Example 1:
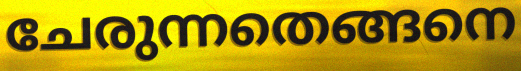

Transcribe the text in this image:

ചേരുന്നതെങ്ങനെ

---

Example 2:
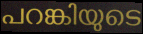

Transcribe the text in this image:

പറങ്കിയുടെ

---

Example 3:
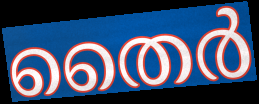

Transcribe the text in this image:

തൈർ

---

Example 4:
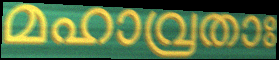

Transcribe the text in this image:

മഹാവ്രതാഃ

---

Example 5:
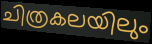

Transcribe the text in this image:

ചിത്രകലയിലും